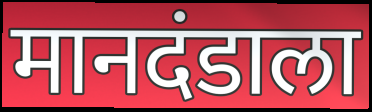
मानदंडाला